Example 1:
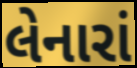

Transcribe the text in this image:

લેનારાં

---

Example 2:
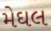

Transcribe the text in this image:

મેઘલ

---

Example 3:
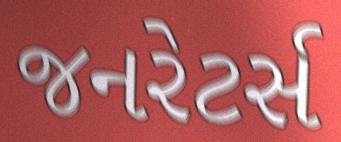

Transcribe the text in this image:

જનરેટર્સ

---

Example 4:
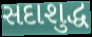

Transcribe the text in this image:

સદાશુદ્ધ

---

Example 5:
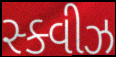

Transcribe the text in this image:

સ્ક્વીઝ